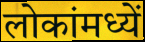
लोकांमध्यें